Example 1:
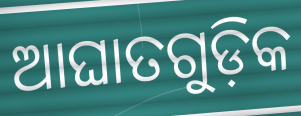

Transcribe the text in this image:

ଆଘାତଗୁଡ଼ିକ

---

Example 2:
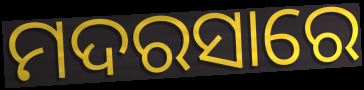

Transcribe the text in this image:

ମଦରସାରେ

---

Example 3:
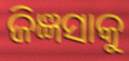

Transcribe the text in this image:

ଜିଜ୍ଞସାକୁ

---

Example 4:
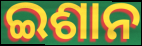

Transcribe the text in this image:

ଇଶାନ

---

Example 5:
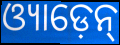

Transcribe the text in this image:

ଓ୍ୟାଡ଼େନ୍